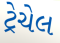
ટ્રેચેલ